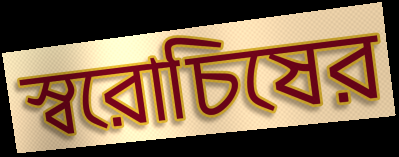
স্বরোচিষের